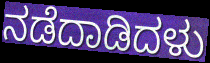
ನಡೆದಾಡಿದಳು